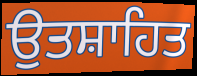
ਉੁਤਸ਼ਾਹਿਤ